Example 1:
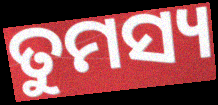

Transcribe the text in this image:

ତୁମସ୍ୟ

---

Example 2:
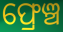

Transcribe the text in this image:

ଫ୍ରେଞ୍ଚ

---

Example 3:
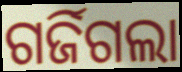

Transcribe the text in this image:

ଗର୍ଜିଗଲା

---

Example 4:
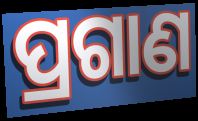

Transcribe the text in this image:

ପ୍ରଗାଣ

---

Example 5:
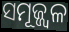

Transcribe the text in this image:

ସମୂଜ୍ଜ୍ୱଳ